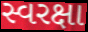
સ્વરક્ષા